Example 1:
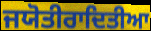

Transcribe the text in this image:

ਜਯੋਤੀਰਾਦਿਤੀਆ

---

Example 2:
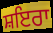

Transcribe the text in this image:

ਸ਼ਇਰਾ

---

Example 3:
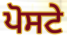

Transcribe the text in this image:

ਪੋਸਟੇ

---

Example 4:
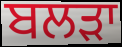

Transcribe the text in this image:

ਬਲੜਾ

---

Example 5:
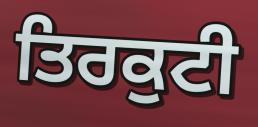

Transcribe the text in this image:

ਤਿਰਕੁਟੀ